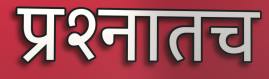
प्रश्नातच